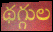
థగ్గుల